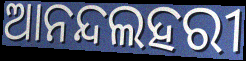
ଆନନ୍ଦଲହରୀ